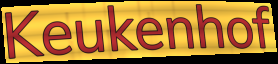
Keukenhof